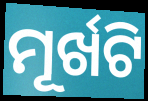
ମୂର୍ଖଟି